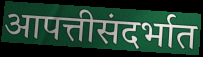
आपत्तीसंदर्भात